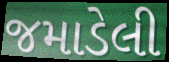
જમાડેલી